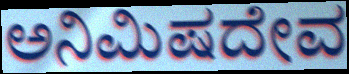
ಅನಿಮಿಷದೇವ